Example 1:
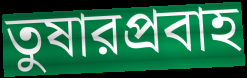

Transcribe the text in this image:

তুষারপ্রবাহ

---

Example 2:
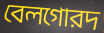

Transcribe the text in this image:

বেলগোরদ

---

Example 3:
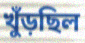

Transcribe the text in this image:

খুঁড়ছিল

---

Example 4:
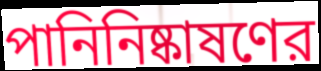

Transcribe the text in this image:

পানিনিষ্কাষণের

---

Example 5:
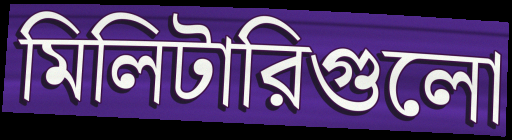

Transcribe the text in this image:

মিলিটারিগুলো